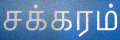
சக்கரம்